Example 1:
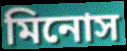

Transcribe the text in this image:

মিনোস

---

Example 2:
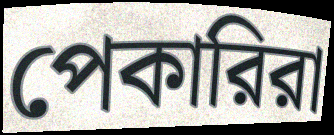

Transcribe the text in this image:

পেকারিরা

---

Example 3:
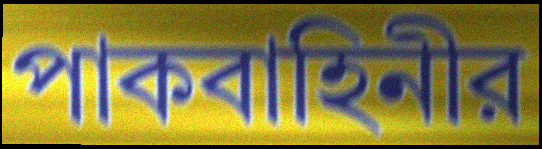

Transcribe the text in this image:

পাকবাহিনীর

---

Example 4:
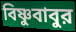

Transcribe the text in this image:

বিষ্ণুবাবুর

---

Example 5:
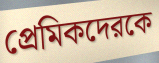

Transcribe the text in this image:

প্রেমিকদেরকে